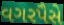
વગરપૈસે